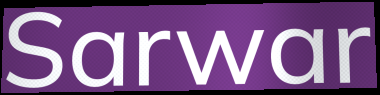
Sarwar